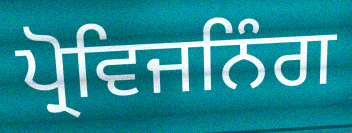
ਪ੍ਰੋਵਿਜਨਿੰਗ